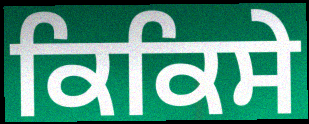
ਕਿਕਿਸੇ